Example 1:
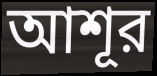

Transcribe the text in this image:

আশূর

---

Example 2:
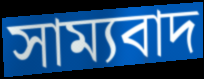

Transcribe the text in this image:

সাম্যবাদ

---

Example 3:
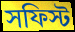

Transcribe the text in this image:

সফিস্ট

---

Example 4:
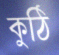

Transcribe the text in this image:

কুঠি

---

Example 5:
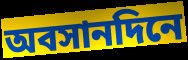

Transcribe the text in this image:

অবসানদিনে